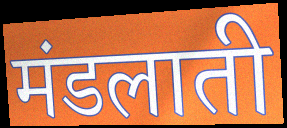
मंडलाती